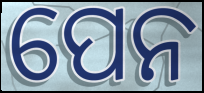
ପେନ